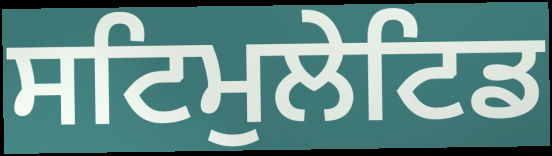
ਸਟਿਮੁਲੇਟਿਡ